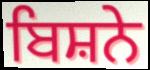
ਬਿਸ਼ਨੇ